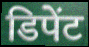
डिपेंट